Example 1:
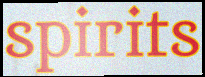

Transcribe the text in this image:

spirits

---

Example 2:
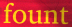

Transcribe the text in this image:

fount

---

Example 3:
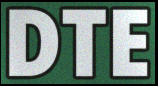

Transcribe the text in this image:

DTE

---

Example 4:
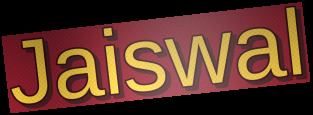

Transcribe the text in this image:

Jaiswal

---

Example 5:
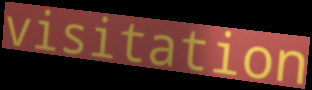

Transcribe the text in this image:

visitation